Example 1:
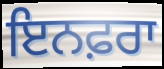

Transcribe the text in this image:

ਇਨਫ਼ਰਾ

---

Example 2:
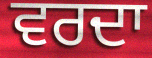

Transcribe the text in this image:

ਵਰਦਾ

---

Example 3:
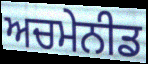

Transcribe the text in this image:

ਅਚਮੇਨੀਡ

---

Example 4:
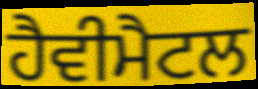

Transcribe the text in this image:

ਹੈਵੀਮੈਟਲ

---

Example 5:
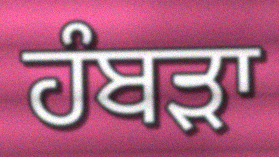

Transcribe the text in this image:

ਹੰਬੜਾ